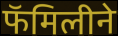
फॅमिलीने